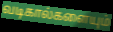
வடிகால்களையும்